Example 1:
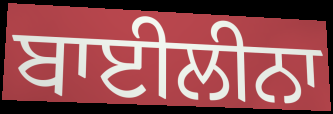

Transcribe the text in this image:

ਬਾਈਲੀਨਾ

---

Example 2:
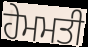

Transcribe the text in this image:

ਹੇਮਮਤੀ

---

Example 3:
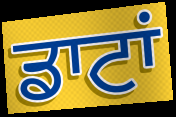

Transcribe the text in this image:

ਡਾਟਾਂ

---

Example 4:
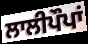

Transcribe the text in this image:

ਲਾਲੀਪੌਪਾਂ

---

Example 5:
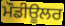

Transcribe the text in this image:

ਮੌਡੀਊਲਰ